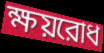
ক্ষয়রোধ